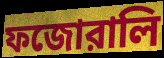
ফজোরালি